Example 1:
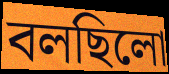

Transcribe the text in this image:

বলছিলো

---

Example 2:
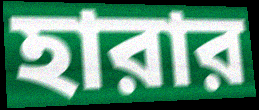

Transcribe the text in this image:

হারার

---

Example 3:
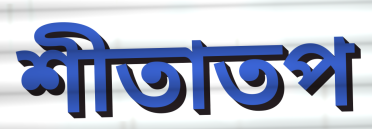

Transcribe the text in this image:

শীতাতপ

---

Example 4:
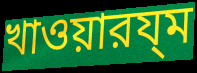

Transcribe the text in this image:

খাওয়ারয্ম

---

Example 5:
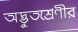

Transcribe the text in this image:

অদ্ভুতশ্রেণীর